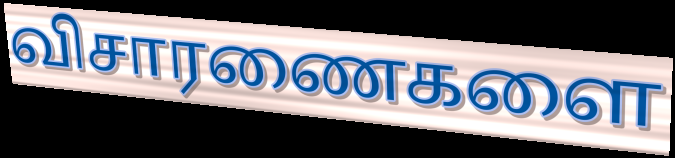
விசாரணைகளை